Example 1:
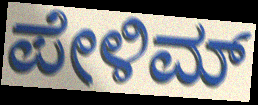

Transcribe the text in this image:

ಪೇಳಿಮ್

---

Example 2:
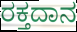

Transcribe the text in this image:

ರಕ್ತದಾನ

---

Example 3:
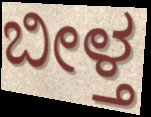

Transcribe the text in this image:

ಬೀಳ್ತ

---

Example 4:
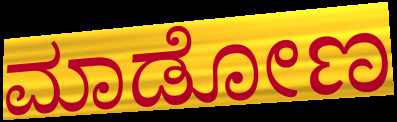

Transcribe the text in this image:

ಮಾಡೋಣ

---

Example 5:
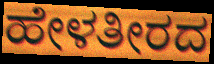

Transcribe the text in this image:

ಹೇಳತೀರದ